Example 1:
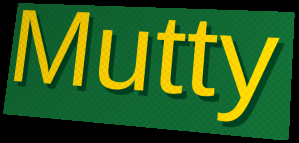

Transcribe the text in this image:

Mutty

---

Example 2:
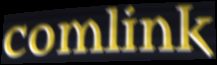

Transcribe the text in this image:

comlink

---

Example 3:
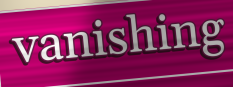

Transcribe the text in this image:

vanishing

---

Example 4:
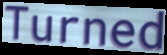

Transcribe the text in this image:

Turned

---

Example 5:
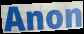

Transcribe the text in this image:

Anon